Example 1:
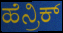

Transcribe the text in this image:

ಹೆನ್ರಿಕ್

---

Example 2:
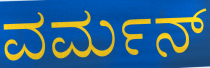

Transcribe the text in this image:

ವರ್ಮನ್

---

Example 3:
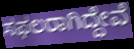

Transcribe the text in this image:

ಸಫಲರಾಗಿದ್ದೇವೆ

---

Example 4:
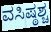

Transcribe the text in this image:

ವಸಿಷ್ಠಶ್ಚ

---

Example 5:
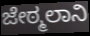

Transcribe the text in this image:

ಜೇಠ್ಮಲಾನಿ